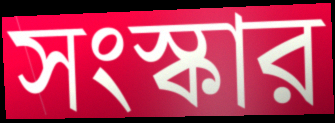
সংস্কার